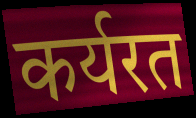
कर्यरत